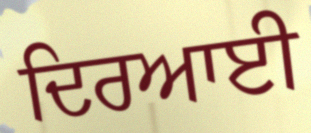
ਦਿਰਆਈ